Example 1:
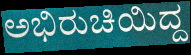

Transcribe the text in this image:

ಅಭಿರುಚಿಯಿದ್ದ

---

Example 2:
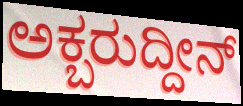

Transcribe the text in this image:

ಅಕ್ಬರುದ್ದೀನ್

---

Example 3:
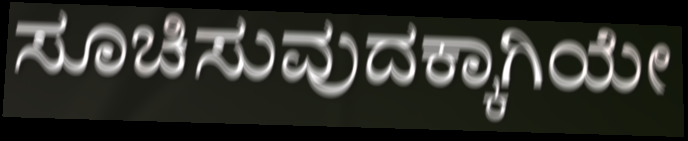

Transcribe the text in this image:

ಸೂಚಿಸುವುದಕ್ಕಾಗಿಯೇ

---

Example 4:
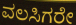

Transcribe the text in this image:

ವಲಸಿಗರೇ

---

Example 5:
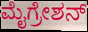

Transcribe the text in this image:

ಮೈಗ್ರೇಶನ್